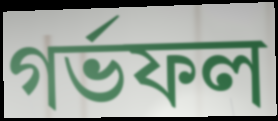
গর্ভফল